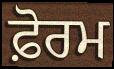
ਫ਼ੋਰਮ